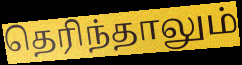
தெரிந்தாலும்